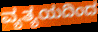
ವ್ಯತ್ಯಯದಿಂದ